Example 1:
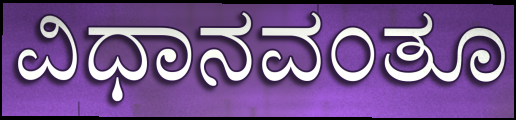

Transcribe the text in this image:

ವಿಧಾನವಂತೂ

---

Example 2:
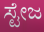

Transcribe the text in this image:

ಸ್ಟೇಜ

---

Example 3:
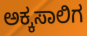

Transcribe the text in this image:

ಅಕ್ಕಸಾಲಿಗ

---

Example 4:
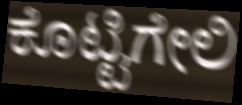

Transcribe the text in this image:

ಕೊಟ್ಟಿಗೇಲಿ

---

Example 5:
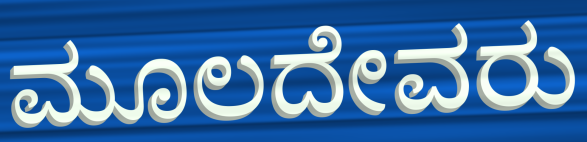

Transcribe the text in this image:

ಮೂಲದೇವರು